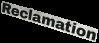
Reclamation